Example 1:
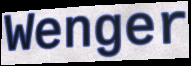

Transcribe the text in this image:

Wenger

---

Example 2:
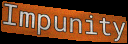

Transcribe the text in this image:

Impunity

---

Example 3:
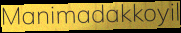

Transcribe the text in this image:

Manimadakkoyil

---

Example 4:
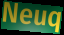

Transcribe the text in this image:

Neuq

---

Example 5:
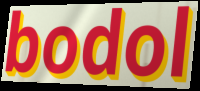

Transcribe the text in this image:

bodol